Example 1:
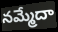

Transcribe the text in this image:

నమ్మేదా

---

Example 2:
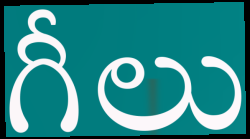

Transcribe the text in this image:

గీలు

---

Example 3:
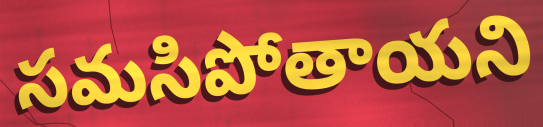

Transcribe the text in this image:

సమసిపోతాయని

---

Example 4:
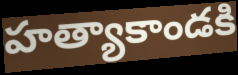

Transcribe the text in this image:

హత్యాకాండకి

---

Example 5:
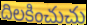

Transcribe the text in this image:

దిలకించుచు